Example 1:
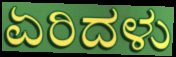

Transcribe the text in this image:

ಏರಿದಳು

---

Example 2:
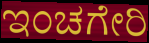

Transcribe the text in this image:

ಇಂಚಗೇರಿ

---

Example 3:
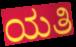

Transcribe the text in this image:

ಯತಿ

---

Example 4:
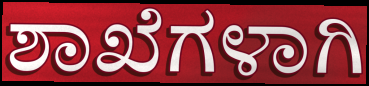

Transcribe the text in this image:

ಶಾಖೆಗಳಾಗಿ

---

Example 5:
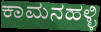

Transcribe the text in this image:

ಕಾಮನಹಳ್ಳಿ